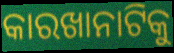
କାରଖାନାଟିକୁ